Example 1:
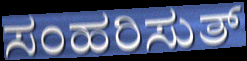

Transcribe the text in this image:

ಸಂಹರಿಸುತ್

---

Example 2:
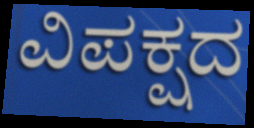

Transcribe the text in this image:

ವಿಪಕ್ಷದ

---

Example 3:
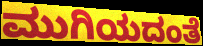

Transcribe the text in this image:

ಮುಗಿಯದಂತೆ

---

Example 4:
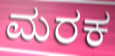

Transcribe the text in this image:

ಮರಕ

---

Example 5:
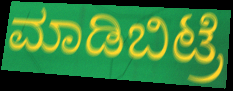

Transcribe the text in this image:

ಮಾಡಿಬಿಟ್ರೆ